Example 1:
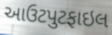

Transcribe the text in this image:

આઉટપુટફાઇલ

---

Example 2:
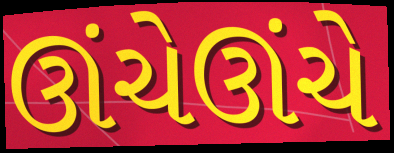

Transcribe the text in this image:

ઊંચેઊંચે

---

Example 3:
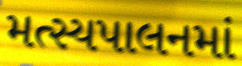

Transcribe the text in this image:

મત્સ્યપાલનમાં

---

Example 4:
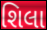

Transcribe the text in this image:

શિલા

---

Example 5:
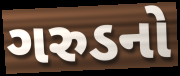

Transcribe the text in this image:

ગરુડનો